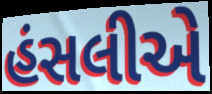
હંસલીએ